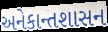
અનેકાન્તશાસન